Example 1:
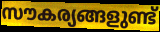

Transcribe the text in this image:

സൗകര്യങ്ങളുണ്ട്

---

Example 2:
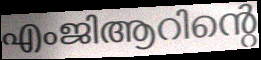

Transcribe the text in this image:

എംജിആറിന്റെ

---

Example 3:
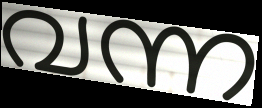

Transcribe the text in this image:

വന്ന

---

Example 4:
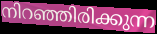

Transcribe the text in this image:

നിറഞ്ഞിരിക്കുന്ന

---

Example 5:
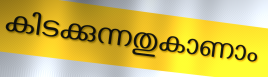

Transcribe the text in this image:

കിടക്കുന്നതുകാണാം